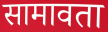
सामावता